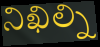
నిఖిల్ని